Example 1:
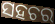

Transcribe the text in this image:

ସହଚର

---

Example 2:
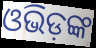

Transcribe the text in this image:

ଓଭିଡ଼ଙ୍କ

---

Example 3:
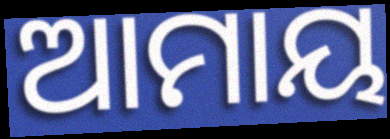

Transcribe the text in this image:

ଆମାୟ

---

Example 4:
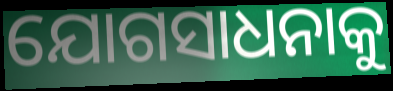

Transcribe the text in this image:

ଯୋଗସାଧନାକୁ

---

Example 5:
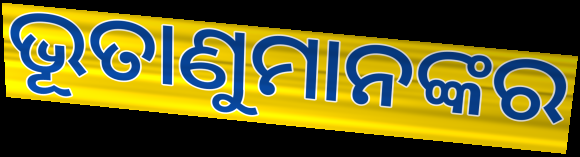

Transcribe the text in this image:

ଭୂତାଣୁମାନଙ୍କର